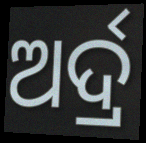
ଅର୍ଦ୍ର